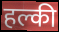
हल्‍की